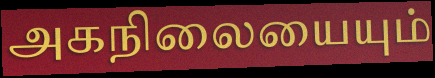
அகநிலையையும்